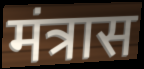
मंत्रास